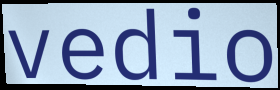
vedio